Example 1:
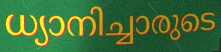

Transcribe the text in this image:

ധ്യാനിച്ചാരുടെ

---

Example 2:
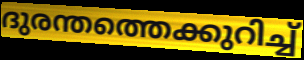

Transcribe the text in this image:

ദുരന്തത്തെക്കുറിച്ച്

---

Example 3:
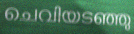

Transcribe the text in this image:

ചെവിയടഞ്ഞു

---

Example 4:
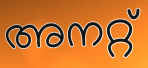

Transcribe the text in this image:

അനറ്റ്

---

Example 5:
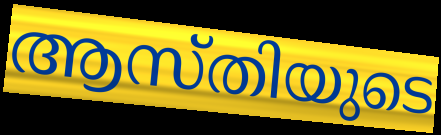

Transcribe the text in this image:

ആസ്തിയുടെ